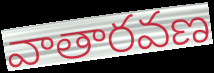
వాతారవణ